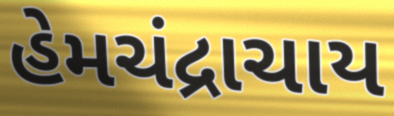
હેમચંદ્રાચાય